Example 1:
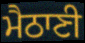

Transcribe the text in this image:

ਮੈਠਾਣੀ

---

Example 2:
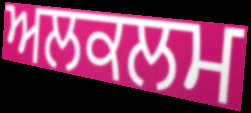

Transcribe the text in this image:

ਅਲਕਲਮ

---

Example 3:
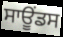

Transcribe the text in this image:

ਸਾਊਂਡਸ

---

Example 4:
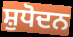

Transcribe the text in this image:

ਸ਼ੁਧੋਦਨ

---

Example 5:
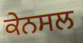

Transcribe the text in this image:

ਕੇਨਸਲ